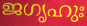
ജഗൃഹുഃ